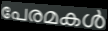
പേരമകൾ